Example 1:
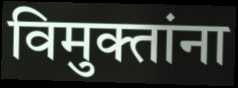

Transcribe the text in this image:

विमुक्तांना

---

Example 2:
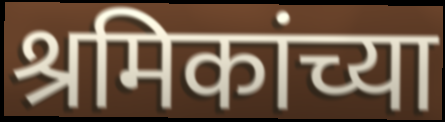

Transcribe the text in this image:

श्रमिकांच्या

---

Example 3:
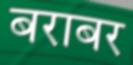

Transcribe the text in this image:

बराबर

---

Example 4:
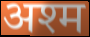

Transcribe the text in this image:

अश्म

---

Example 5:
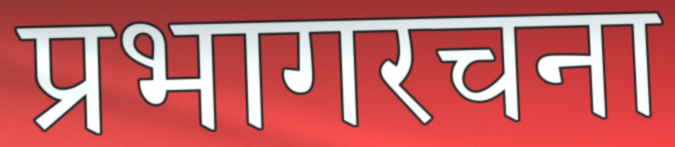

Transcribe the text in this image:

प्रभागरचना